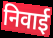
निवाई